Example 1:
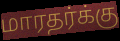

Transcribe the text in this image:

மாரதர்க்கு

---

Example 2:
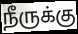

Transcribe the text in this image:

நீருக்கு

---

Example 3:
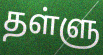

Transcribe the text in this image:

தள்ளு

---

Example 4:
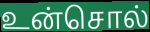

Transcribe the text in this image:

உன்சொல்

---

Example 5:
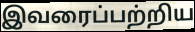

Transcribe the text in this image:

இவரைப்பற்றிய